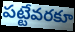
పట్టేవరకూ